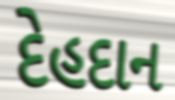
દેહદાન